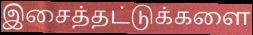
இசைத்தட்டுக்களை